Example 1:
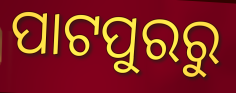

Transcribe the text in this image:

ପାଟପୁରରୁ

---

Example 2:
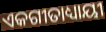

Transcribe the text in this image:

ଏକଗୀତାଧ୍ୟାୟୀ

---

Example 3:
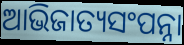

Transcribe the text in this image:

ଆଭିଜାତ୍ୟସଂପନ୍ନା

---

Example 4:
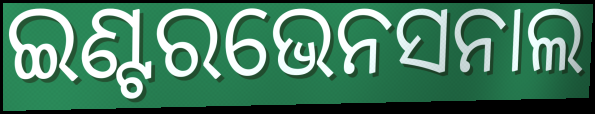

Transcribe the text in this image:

ଇଣ୍ଟରଭେନସନାଲ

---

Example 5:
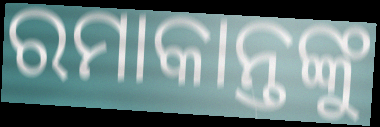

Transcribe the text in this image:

ରମାକାନ୍ତଙ୍କୁ